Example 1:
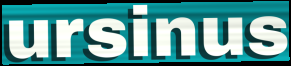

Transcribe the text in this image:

ursinus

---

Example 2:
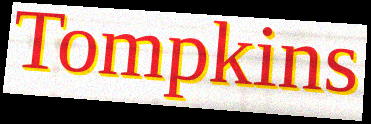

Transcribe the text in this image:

Tompkins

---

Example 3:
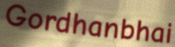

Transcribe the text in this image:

Gordhanbhai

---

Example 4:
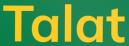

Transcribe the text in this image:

Talat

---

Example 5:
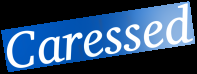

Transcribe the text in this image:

Caressed